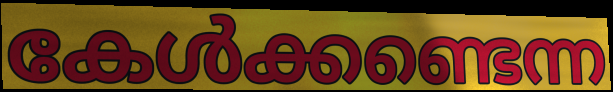
കേൾക്കണ്ടെന്ന